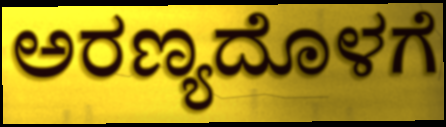
ಅರಣ್ಯದೊಳಗೆ